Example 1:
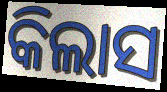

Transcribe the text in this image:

କିଲାସ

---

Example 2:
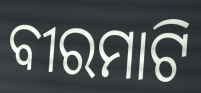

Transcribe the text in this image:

ବୀରମାଟି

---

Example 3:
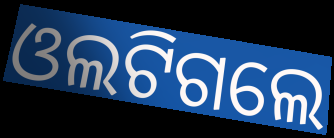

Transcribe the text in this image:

ଓଲଟିଗଲେ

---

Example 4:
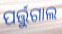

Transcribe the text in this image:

ପର୍ତ୍ତୁଗାଲ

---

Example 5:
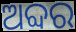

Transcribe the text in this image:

ଅବ୍ଦର